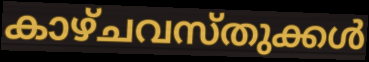
കാഴ്ചവസ്തുക്കൾ